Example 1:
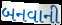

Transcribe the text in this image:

બનવાની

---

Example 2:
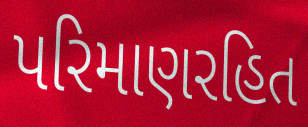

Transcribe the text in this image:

પરિમાણરહિત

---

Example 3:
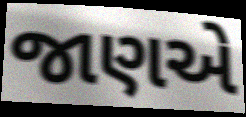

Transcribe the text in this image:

જાણએ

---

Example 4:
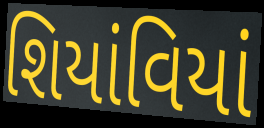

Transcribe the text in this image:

શિયાંવિયાં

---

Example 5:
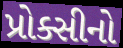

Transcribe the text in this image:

પ્રોક્સીનો